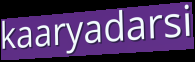
kaaryadarsi